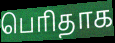
பெரிதாக